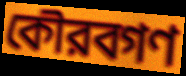
কৌরবগণ